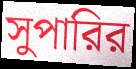
সুপারির